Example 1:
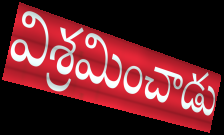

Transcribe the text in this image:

విశ్రమించాడు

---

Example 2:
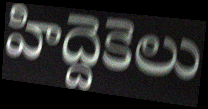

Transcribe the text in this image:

హిద్దెకెలు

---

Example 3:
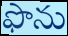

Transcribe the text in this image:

ఫొను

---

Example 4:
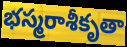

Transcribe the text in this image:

భస్మరాశీకృతా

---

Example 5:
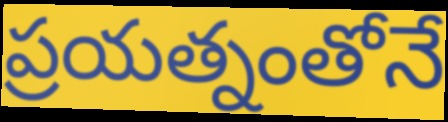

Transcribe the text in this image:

ప్రయత్నంతోనే